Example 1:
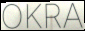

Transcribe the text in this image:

OKRA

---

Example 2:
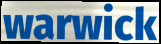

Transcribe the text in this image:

warwick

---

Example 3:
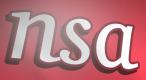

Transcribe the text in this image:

nsa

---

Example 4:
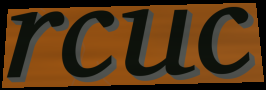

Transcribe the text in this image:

rcuc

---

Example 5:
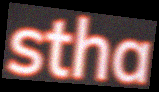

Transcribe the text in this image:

stha